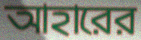
আহারের